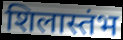
शिलास्तंभ